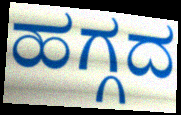
ಹಗ್ಗದ